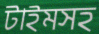
টাইমসহ